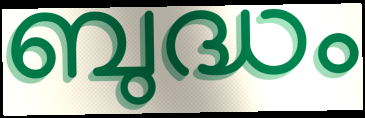
ബുദ്ധം